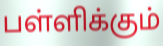
பள்ளிக்கும்